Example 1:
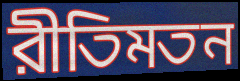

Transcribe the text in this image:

রীতিমতন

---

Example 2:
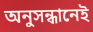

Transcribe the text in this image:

অনুসন্ধানেই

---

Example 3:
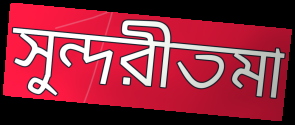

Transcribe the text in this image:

সুন্দরীতমা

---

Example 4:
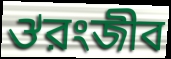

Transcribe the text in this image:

ঔরংজীব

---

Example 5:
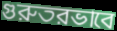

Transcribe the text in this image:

গুরুতরভাবে